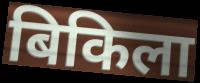
बिकिला